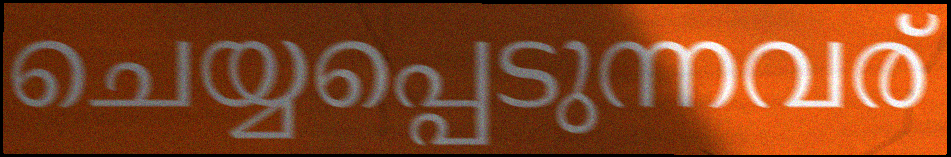
ചെയ്യപ്പെടുന്നവര്